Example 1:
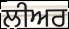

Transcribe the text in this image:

ਲੀਅਰ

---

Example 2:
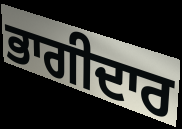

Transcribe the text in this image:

ਭਾਗੀਦਾਰ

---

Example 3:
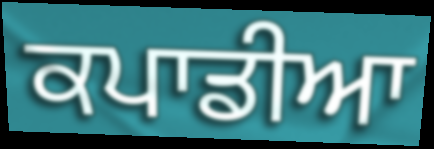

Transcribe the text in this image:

ਕਪਾਡੀਆ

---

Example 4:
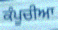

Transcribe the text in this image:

ਕੰਪੂਚੀਆ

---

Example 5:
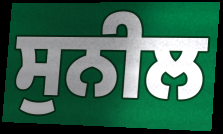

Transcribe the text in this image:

ਸੁਨੀਲ